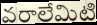
వరాలేమిటి